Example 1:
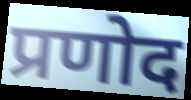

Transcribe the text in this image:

प्रणोद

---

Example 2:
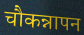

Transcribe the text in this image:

चौकन्नापन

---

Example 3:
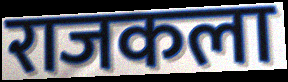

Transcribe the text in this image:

राजकला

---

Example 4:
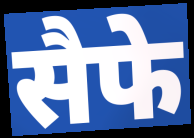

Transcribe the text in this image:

सैफे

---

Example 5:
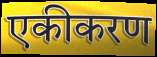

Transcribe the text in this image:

एकीकरण